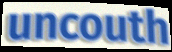
uncouth